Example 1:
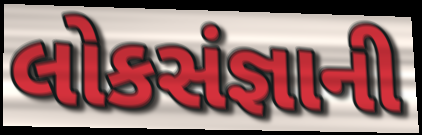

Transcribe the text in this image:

લોકસંજ્ઞાની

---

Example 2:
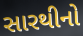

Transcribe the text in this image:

સારથીનો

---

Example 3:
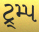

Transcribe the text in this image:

ટ્ર્મ્પ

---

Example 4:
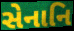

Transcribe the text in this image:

સેનાનિ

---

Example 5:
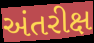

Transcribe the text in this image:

અંતરીક્ષ